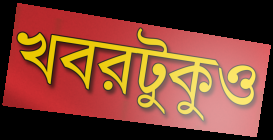
খবরটুকুও